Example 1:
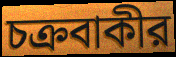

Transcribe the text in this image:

চক্রবাকীর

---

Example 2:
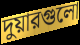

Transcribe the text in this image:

দুয়ারগুলো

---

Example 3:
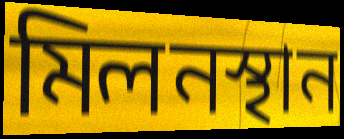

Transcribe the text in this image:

মিলনস্থান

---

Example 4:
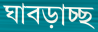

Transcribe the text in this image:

ঘাবড়াচ্ছ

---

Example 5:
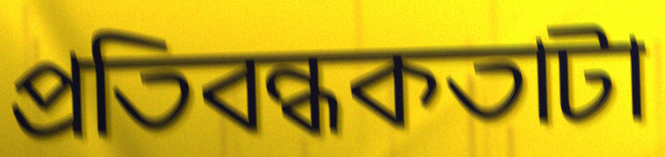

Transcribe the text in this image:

প্রতিবন্ধকতাটা